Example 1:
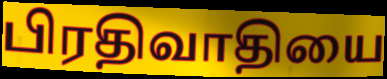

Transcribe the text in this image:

பிரதிவாதியை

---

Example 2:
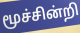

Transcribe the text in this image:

மூச்சின்றி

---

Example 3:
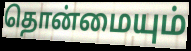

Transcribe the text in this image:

தொன்மையும்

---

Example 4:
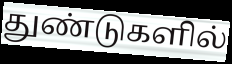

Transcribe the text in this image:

துண்டுகளில்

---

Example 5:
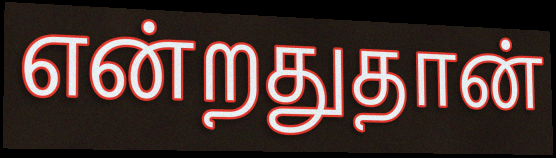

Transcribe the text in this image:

என்றதுதான்